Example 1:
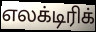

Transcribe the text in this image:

எலக்டிரிக்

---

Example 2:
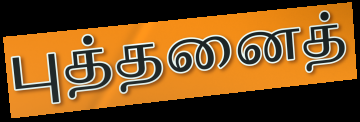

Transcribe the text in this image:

புத்தனைத்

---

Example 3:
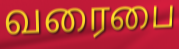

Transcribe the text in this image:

வரைபை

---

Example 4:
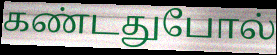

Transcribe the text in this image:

கண்டதுபோல்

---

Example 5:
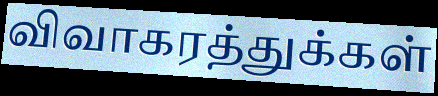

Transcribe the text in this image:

விவாகரத்துக்கள்